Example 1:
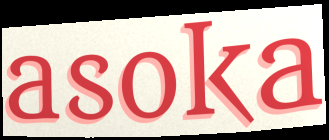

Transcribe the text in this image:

asoka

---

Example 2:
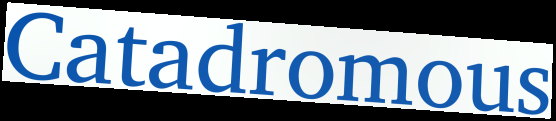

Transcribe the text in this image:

Catadromous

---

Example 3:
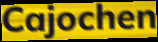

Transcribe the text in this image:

Cajochen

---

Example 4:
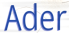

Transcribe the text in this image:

Ader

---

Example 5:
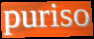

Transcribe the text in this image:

puriso